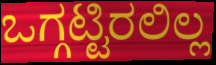
ಒಗ್ಗಟ್ಟಿರಲಿಲ್ಲ